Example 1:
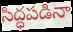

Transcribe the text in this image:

సిద్ధపడినా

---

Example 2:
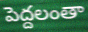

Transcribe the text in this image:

పెద్దలంతా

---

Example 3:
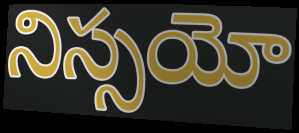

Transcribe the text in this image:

నిస్సయో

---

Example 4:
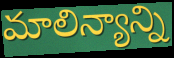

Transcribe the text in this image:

మాలిన్యాన్ని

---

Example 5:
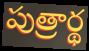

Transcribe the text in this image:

పుత్రార్థ